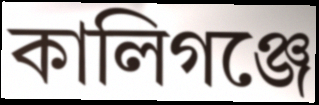
কালিগঞ্জে